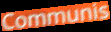
Communis